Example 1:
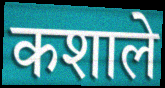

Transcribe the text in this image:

कशाले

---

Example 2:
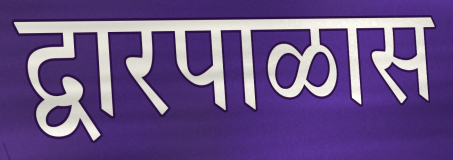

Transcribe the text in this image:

द्वारपाळास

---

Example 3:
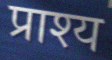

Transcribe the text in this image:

प्राश्य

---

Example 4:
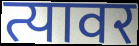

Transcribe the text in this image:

त्यावर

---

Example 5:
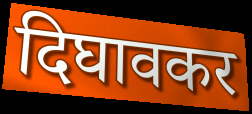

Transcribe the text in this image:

दिघावकर